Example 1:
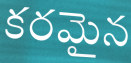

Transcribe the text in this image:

కరమైన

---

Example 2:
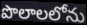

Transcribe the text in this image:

పొలాలలోను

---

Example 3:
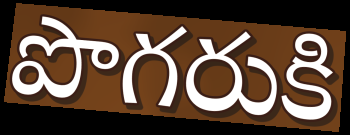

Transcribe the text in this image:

పొగరుకి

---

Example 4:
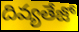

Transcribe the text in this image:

దివ్యతేజో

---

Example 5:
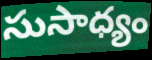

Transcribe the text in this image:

సుసాధ్యం